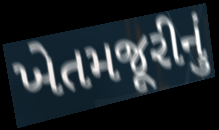
ખેતમજૂરીનું